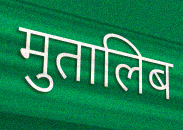
मुतालिब